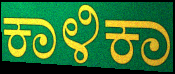
ಕಾಳಿಕಾ